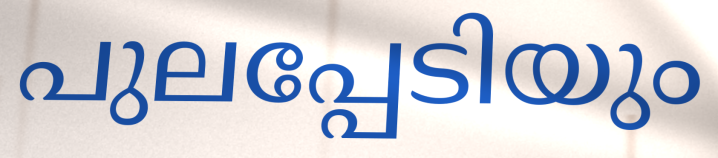
പുലപ്പേടിയും